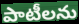
పాటీలను